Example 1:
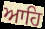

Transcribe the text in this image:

ਆਹਿ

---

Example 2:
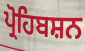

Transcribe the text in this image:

ਪ੍ਰੋਹਿਬਸ਼ਨ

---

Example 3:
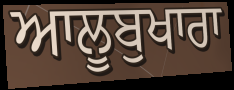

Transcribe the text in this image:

ਆਲੂਬੁਖਾਰਾ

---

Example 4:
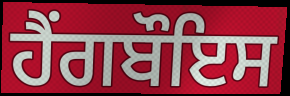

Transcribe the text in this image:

ਹੈਂਗਬੌਇਸ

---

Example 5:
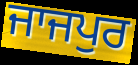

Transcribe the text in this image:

ਜਾਜਪੁਰ